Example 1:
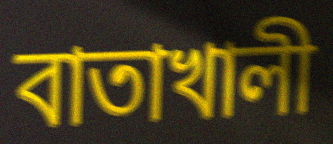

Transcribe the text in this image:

বাতাখালী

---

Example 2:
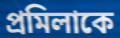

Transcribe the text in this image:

প্রমিলাকে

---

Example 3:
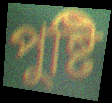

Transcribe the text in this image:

পুষ্টি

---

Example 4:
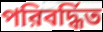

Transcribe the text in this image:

পরিবর্দ্ধিত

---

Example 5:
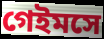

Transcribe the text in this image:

গেইমসে